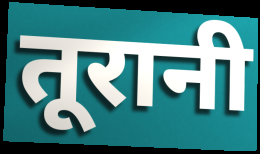
तूरानी